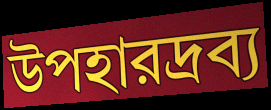
উপহারদ্রব্য